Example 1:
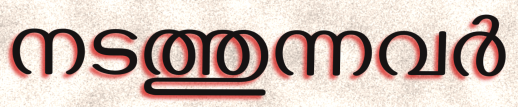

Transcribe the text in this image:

നടത്തുന്നവർ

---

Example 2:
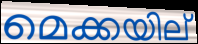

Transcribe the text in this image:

മെക്കയില്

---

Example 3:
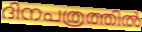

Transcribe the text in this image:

ദിനപത്രത്തിൽ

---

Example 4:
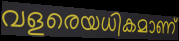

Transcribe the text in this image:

വളരെയധികമാണ്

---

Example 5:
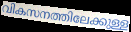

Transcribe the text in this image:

വികസനത്തിലേക്കുള്ള